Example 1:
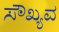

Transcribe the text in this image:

ಸೌಖ್ಯವ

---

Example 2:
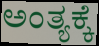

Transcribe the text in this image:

ಅಂತ್ಯಕ್ಕೆ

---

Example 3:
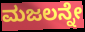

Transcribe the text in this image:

ಮಜಲನ್ನೇ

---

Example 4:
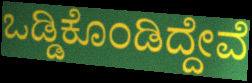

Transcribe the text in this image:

ಒಡ್ಡಿಕೊಂಡಿದ್ದೇವೆ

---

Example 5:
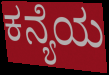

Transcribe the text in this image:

ಕನ್ಯೆಯ